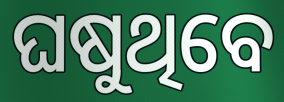
ଘଷୁଥିବେ